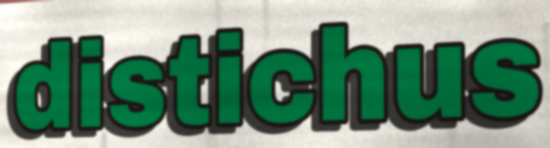
distichus